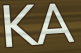
KA